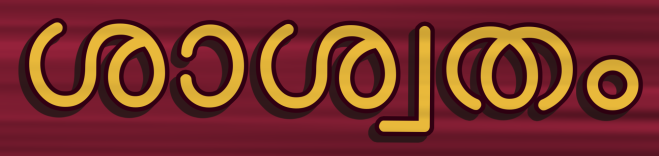
ശാശ്വതം